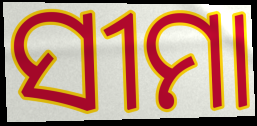
ସୀମା